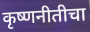
कृष्णनीतीचा